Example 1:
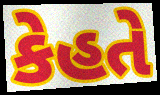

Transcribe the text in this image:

કેહતે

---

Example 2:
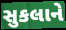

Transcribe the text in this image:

સુકલાને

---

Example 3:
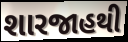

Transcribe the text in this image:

શારજાહથી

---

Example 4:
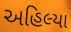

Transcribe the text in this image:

અહિલ્યા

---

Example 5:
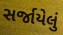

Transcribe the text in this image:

સર્જાયેલું